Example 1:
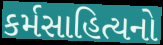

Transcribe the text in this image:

કર્મસાહિત્યનો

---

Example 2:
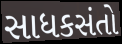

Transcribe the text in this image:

સાધકસંતો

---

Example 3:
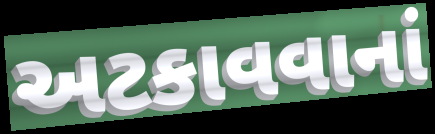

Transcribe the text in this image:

અટકાવવાનાં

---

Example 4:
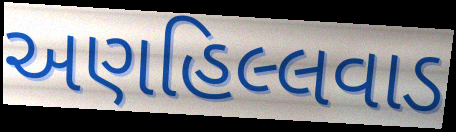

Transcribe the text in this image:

અણહિલ્લવાડ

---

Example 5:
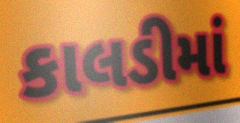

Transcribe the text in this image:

કાલડીમાં